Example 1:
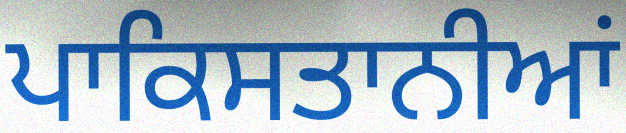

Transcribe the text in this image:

ਪਾਕਿਸਤਾਨੀਆਂ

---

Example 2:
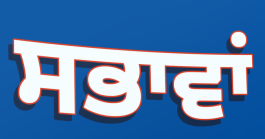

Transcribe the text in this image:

ਸਭਾਵਾਂ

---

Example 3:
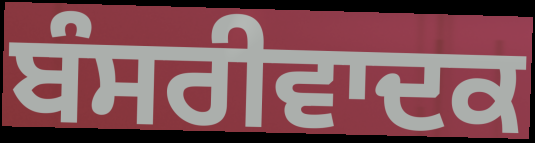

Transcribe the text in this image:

ਬੰਸਰੀਵਾਦਕ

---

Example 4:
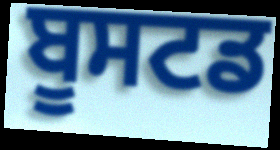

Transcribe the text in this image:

ਬੂਸਟਡ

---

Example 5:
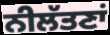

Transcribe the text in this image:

ਨੀਲੱਤਣਾਂ